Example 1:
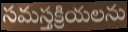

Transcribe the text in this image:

సమస్తక్రియలను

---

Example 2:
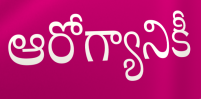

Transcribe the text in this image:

ఆరోగ్యానికీ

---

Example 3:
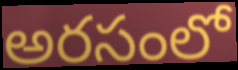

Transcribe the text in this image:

అరసంలో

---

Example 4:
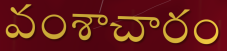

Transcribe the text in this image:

వంశాచారం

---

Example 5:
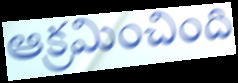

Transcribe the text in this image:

ఆక్రమించింది